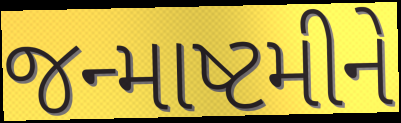
જન્માષ્ટમીને